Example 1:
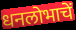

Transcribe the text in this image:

धनलोभाचें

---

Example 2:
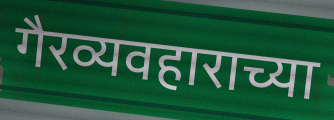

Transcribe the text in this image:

गैरव्यवहाराच्या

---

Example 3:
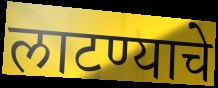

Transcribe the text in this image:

लाटण्याचे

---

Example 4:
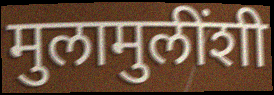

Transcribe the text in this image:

मुलामुलींशी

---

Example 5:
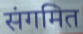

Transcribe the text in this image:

संगमित